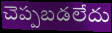
చెప్పబడలేదు